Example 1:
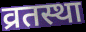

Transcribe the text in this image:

व्रतस्था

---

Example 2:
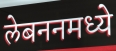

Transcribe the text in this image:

लेबननमध्ये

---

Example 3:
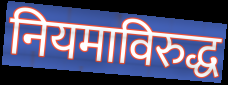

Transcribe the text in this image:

नियमाविरुद्ध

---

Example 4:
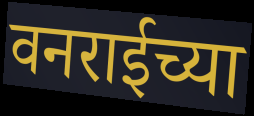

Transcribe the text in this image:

वनराईच्या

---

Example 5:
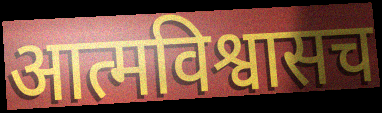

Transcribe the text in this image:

आत्मविश्वासच